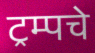
ट्रम्पचे